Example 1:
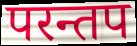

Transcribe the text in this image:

परन्तप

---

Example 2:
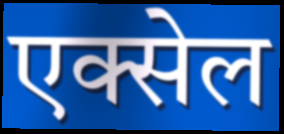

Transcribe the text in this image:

एक्सेल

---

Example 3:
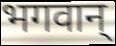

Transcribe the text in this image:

भगवान्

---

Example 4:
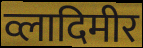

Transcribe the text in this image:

व्लादिमीर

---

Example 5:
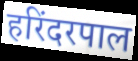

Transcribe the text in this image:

हरिंदरपाल